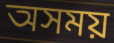
অসময়